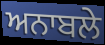
ਅਨਾਬਲੇ